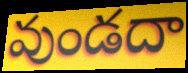
వుండదా